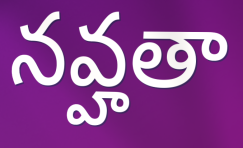
నవ్హతా